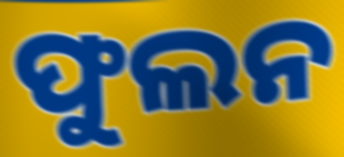
ଫୁଲନ